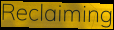
Reclaiming